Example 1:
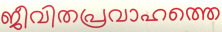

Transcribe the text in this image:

ജീവിതപ്രവാഹത്തെ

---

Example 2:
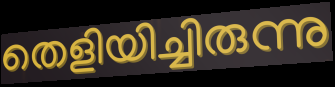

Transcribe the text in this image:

തെളിയിച്ചിരുന്നു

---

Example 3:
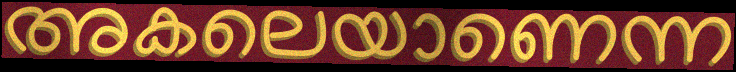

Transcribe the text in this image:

അകലെയാണെന്ന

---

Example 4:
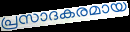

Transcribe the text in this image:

പ്രസാദകരമായ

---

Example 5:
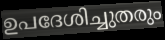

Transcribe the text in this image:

ഉപദേശിച്ചുതരും